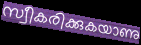
സ്വീകരിക്കുകയാണു